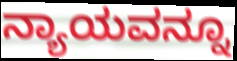
ನ್ಯಾಯವನ್ನೂ